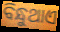
ବିନ୍ଧୁଥାଏ